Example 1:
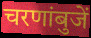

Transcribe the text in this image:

चरणांबुजें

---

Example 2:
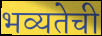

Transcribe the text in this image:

भव्यतेची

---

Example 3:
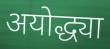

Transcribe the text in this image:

अयोद्ध्या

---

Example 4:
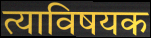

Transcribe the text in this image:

त्याविषयक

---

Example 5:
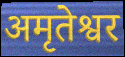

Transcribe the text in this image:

अमृतेश्वर